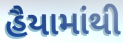
હૈયામાંથી